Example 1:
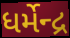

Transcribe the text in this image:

ધર્મેન્દ્ર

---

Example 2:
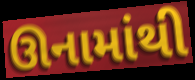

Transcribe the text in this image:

ઊનામાંથી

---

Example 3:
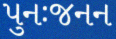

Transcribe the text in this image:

પુનઃજનન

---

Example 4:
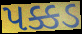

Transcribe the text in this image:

પક્કડ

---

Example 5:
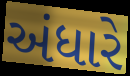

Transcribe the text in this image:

અંધારે